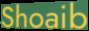
Shoaib